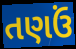
તણઉં